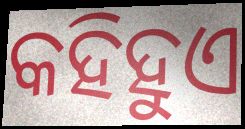
କହିହୁଏ